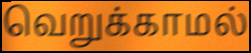
வெறுக்காமல்